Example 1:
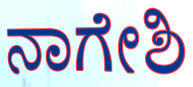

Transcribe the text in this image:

ನಾಗೇಶಿ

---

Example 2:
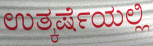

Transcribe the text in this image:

ಉತ್ಕರ್ಷೆಯಲ್ಲಿ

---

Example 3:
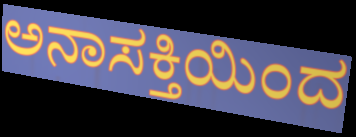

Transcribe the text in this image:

ಅನಾಸಕ್ತಿಯಿಂದ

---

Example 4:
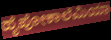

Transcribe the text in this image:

ಹೈಪೋಕಾಲೆಮಿಯಾ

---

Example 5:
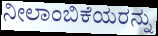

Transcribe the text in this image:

ನೀಲಾಂಬಿಕೆಯರನ್ನು